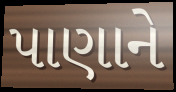
પાણાને